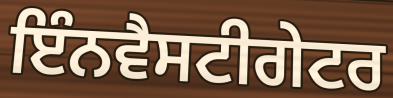
ਇੰਨਵੈਸਟੀਗੇਟਰ